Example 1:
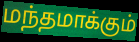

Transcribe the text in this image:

மந்தமாக்கும்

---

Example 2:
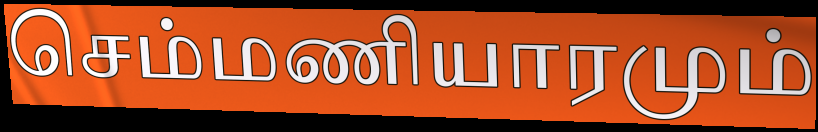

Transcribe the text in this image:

செம்மணியாரமும்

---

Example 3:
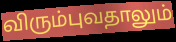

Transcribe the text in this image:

விரும்புவதாலும்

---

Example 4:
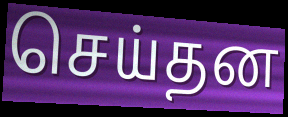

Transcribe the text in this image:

செய்தன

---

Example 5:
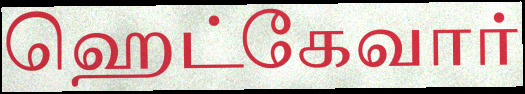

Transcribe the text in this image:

ஹெட்கேவார்